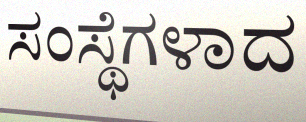
ಸಂಸ್ಥೆಗಳಾದ